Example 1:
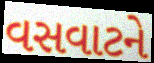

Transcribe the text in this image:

વસવાટને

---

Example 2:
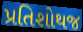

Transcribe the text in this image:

પ્રતિશોથજ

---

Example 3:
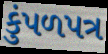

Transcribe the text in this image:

કુંપળપત્ર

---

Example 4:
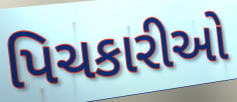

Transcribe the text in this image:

પિચકારીઓ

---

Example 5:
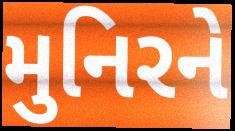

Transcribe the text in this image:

મુનિરને